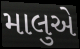
માલુએ